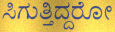
ಸಿಗುತ್ತಿದ್ದರೋ